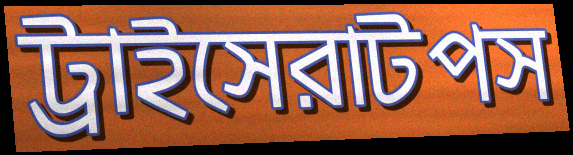
ট্রাইসেরাটপস